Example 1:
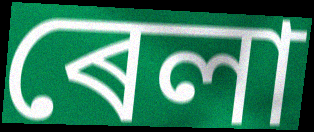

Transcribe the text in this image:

ৰেলা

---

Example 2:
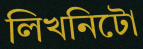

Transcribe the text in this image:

লিখনিটো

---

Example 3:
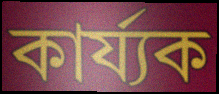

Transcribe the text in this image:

কাৰ্য্যক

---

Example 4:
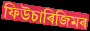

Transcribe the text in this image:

ফিউচাৰিজিমৰ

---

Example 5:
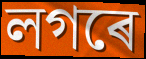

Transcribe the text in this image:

লগৰে